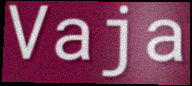
Vaja